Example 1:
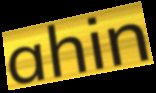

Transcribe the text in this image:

ahin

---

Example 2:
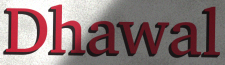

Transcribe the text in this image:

Dhawal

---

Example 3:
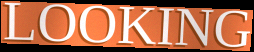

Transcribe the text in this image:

LOOKING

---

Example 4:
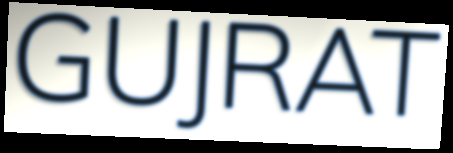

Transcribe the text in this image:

GUJRAT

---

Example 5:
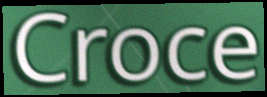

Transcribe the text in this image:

Croce